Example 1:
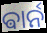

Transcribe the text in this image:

ଵାର୍ନ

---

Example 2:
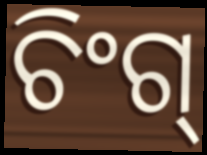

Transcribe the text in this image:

ଚିଂଗ୍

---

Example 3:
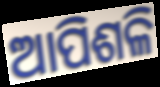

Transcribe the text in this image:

ଆପିଶଳି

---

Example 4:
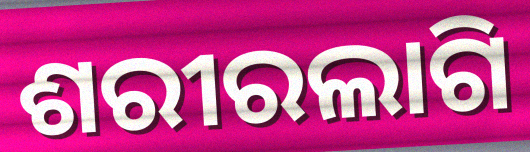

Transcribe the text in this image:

ଶରୀରଲାଗି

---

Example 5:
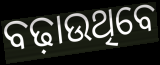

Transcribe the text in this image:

ବଢ଼ାଉଥିବେ